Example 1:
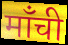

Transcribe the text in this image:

माँची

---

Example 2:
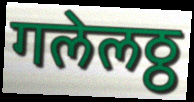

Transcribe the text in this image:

गलेलठ्ठ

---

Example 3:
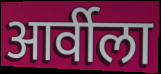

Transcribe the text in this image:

आर्वीला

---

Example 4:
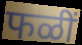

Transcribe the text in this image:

फळीं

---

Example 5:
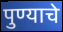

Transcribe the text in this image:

पुण्याचे